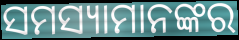
ସମସ୍ଯାମାନଙ୍କର